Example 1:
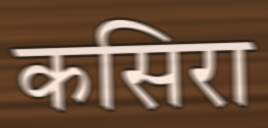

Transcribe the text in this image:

कसिरा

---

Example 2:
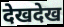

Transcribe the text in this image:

देखदेख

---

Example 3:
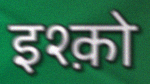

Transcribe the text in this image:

इश्क़ो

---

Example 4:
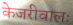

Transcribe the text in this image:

केजरीवालः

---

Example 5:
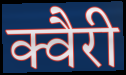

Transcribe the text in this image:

क्वैरी